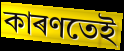
কাৰণতেই